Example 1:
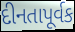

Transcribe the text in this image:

દીનતાપૂર્વક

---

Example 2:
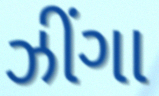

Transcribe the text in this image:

ઝીંગા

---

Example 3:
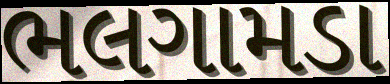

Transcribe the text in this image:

ભલગામડા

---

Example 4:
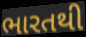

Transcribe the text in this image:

ભારતથી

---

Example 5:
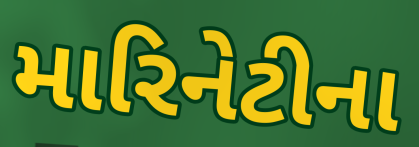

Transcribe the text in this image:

મારિનેટીના